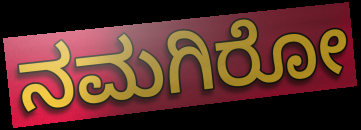
ನಮಗಿರೋ